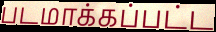
படமாக்கப்பட்ட